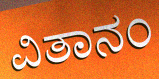
ವಿತಾನಂ